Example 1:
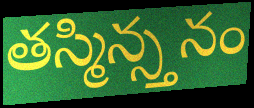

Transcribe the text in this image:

తస్మిన్స్తనం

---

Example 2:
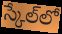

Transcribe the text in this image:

స్కేల్‌లో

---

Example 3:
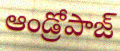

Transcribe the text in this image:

ఆండ్రోపాజ్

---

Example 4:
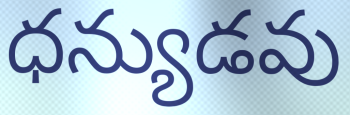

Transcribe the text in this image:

ధన్యుడవు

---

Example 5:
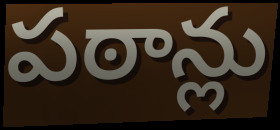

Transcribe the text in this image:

పఠాన్లు